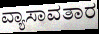
ವ್ಯಾಸಾವತಾರ